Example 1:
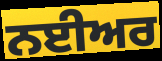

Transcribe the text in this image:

ਨਈਅਰ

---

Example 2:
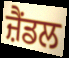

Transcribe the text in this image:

ਜ਼ੈਂਡਲ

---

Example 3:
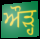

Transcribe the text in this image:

ਔੜ੍ਹ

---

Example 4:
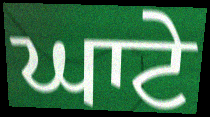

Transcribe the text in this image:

ਘਾਟੇ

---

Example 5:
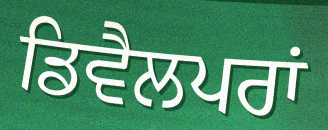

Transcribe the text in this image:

ਡਿਵੈਲਪਰਾਂ